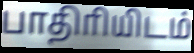
பாதிரியிடம்